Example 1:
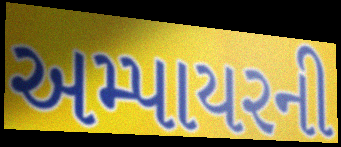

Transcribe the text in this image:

અમ્પાયરની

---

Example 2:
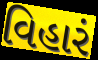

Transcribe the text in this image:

વિહારં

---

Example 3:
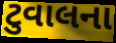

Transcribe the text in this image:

ટુવાલના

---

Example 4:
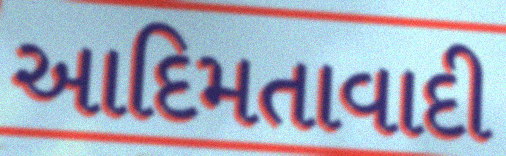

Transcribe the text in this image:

આદિમતાવાદી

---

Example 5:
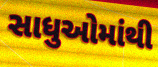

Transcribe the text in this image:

સાધુઓમાંથી